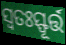
ସ୍ୱତଃସ୍ଫୂର୍ତ୍ତ